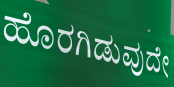
ಹೊರಗಿಡುವುದೇ